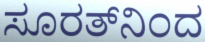
ಸೂರತ್‌ನಿಂದ